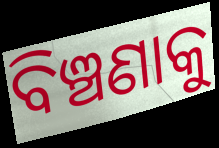
ବିଞ୍ଚଣାକୁ